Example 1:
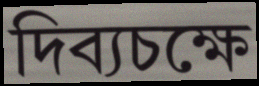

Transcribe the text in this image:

দিব্যচক্ষে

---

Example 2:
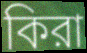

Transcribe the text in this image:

কিরা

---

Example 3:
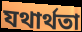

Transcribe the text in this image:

যথার্থতা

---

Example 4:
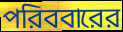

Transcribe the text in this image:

পরিববারের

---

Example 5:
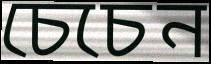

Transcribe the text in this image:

চেচেন